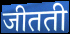
जीतती